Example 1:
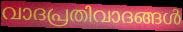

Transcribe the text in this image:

വാദപ്രതിവാദങ്ങൾ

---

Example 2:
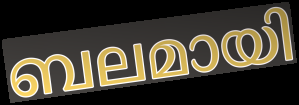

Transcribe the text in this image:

ബലമായി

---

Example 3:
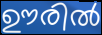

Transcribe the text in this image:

ഊരിൽ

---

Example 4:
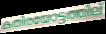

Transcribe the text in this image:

കുതിരയോട്ടത്തില്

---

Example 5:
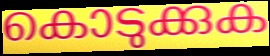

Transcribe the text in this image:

കൊടുക്കുക